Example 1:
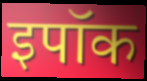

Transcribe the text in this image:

इपॉक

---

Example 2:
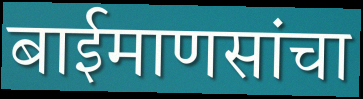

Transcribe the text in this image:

बाईमाणसांचा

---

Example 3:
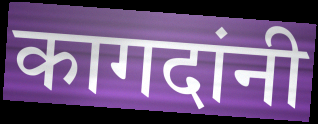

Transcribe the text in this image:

कागदांनी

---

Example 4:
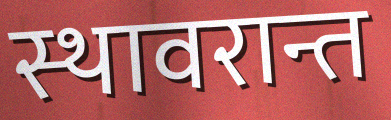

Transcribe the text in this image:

स्थावरान्त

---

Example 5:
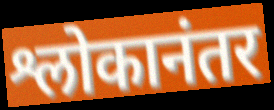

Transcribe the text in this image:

श्लोकानंतर